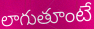
లాగుతూంటే